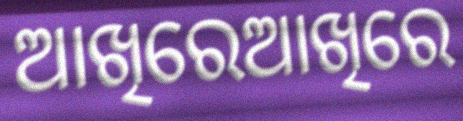
ଆଖିରେଆଖିରେ